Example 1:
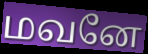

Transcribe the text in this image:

மவனே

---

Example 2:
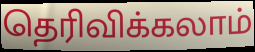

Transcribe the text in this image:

தெரிவிக்கலாம்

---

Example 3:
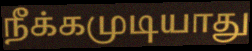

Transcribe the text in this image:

நீக்கமுடியாது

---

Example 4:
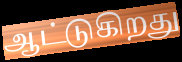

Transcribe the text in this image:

ஆட்டுகிறது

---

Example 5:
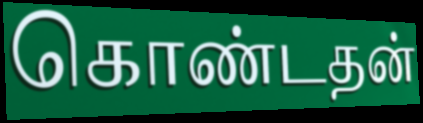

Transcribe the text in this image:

கொண்டதன்